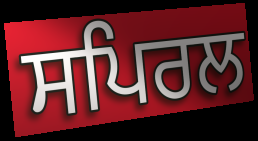
ਸਪਿਰਲ